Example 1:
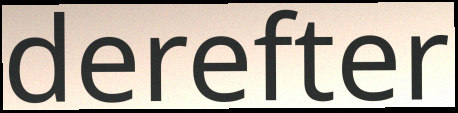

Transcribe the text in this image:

derefter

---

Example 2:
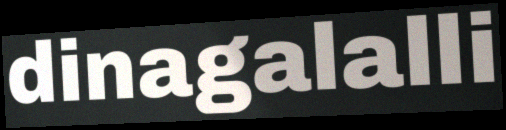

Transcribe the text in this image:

dinagalalli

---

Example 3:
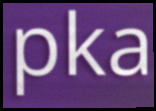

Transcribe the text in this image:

pka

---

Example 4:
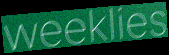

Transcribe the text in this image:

weeklies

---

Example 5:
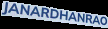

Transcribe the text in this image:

JANARDHANRAO